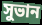
সুভান